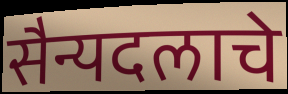
सैन्यदलाचे